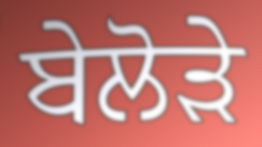
ਬੇਲੋੜੇ